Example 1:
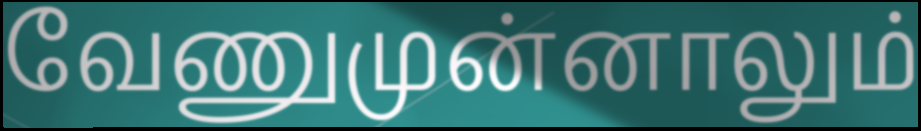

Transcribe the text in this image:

வேணுமுன்னாலும்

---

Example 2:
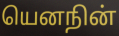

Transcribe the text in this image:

யெனநின்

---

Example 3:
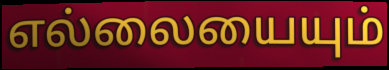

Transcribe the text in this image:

எல்லையையும்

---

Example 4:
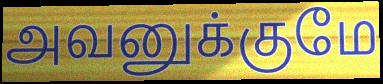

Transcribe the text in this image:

அவனுக்குமே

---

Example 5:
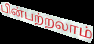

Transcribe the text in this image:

பின்பற்றலாம்